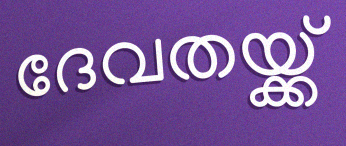
ദേവതയ്ക്ക്